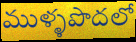
ముళ్ళపొదలో